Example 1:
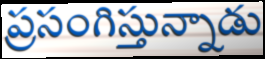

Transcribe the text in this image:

ప్రసంగిస్తున్నాడు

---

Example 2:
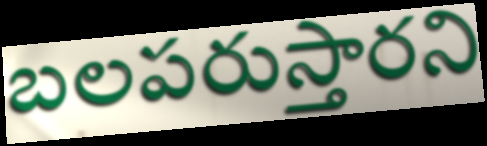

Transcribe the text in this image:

బలపరుస్తారని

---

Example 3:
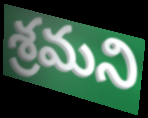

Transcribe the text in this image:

శ్రమని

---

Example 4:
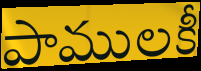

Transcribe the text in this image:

పాములకీ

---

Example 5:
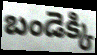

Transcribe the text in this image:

బండెక్కి